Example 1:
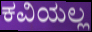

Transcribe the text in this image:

ಕವಿಯಲ್ಲ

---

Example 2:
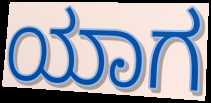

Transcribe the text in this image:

ಯಾಗ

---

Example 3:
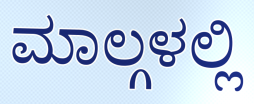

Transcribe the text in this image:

ಮಾಲ್ಗಳಲ್ಲಿ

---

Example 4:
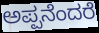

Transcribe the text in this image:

ಅಪ್ಪನೆಂದರೆ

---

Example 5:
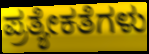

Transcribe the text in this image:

ಪ್ರತ್ಯೇಕತೆಗಳು